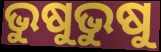
ଭୁଷୁଭୁଷୁ